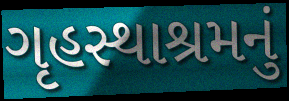
ગૃહસ્થાશ્રમનું